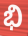
భి